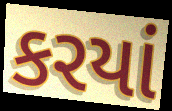
કરયાં